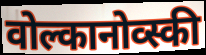
वोल्कानोव्स्की